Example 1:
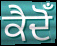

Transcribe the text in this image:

ਕੈਦੋਁ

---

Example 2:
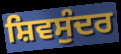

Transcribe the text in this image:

ਸ਼ਿਵਸੁੰਦਰ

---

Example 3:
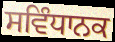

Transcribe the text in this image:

ਸਵਿੰਧਾਨਕ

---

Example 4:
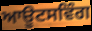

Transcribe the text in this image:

ਆਊਟਸਵਿੰਗ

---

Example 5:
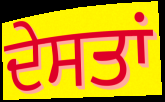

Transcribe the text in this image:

ਦੇਸਤਾਂ